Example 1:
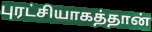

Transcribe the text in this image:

புரட்சியாகத்தான்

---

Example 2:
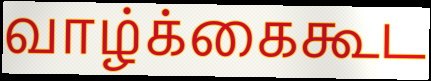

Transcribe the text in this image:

வாழ்க்கைகூட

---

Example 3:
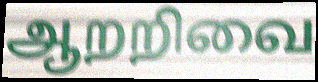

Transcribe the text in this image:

ஆறறிவை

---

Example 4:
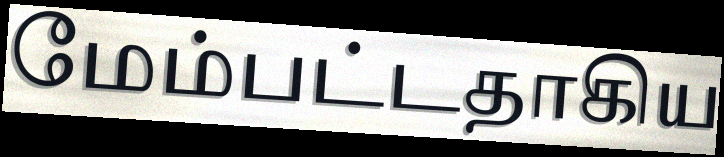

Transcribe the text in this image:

மேம்பட்டதாகிய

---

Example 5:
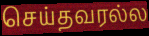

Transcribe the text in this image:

செய்தவரல்ல